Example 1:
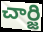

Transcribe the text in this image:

చార్జి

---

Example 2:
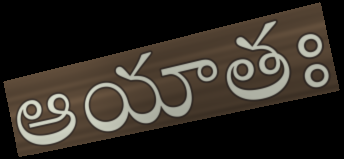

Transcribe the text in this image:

ఆయాతః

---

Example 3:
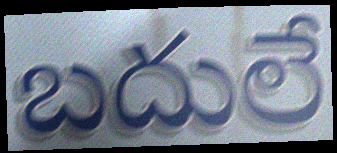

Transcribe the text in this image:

బదులే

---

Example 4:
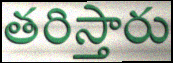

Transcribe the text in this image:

తరిస్తారు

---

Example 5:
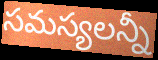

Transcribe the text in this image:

సమస్యలన్నీ